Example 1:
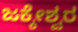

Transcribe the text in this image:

ಜಕ್ಕೇಶ್ವರ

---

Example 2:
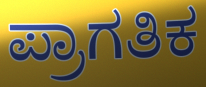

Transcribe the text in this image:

ಪ್ರಾಗತಿಕ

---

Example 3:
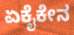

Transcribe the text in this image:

ಏಕೈಕೇನ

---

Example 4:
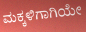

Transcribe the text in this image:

ಮಕ್ಕಳಿಗಾಗಿಯೇ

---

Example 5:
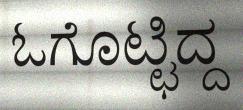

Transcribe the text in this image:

ಓಗೊಟ್ಟಿದ್ದ